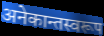
अनेकान्तस्वरूप